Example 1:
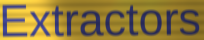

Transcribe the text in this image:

Extractors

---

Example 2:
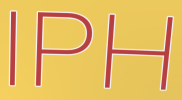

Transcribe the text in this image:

IPH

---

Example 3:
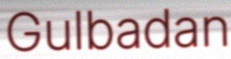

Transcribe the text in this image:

Gulbadan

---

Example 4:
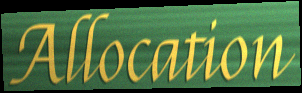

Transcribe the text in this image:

Allocation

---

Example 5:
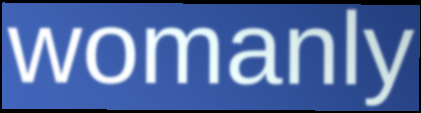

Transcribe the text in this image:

womanly